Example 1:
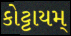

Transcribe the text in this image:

કોટ્ટાયમ્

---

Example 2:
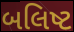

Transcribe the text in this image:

બલિષ્ટ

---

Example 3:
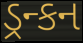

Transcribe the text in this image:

ડ્રન્કન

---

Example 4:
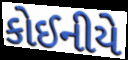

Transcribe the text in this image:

કોઈનીયે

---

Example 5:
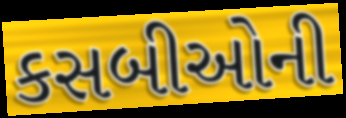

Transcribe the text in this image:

કસબીઓની